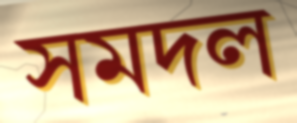
সমদল